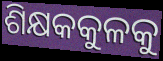
ଶିକ୍ଷକକୁଳକୁ